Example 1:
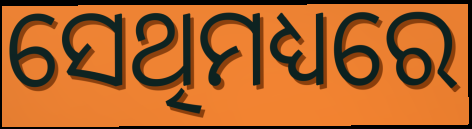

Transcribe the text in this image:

ସେଥିମଧ୍ୟରେ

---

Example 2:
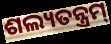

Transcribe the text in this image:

ଶଲ୍ୟତନ୍ତ୍ରମ୍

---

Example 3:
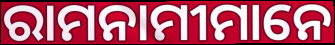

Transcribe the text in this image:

ରାମନାମୀମାନେ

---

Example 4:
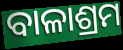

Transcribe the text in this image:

ବାଳାଶ୍ରମ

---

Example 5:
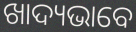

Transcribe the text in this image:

ଖାଦ୍ୟଭାବେ